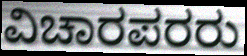
ವಿಚಾರಪರರು